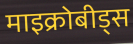
माइक्रोबीड्स